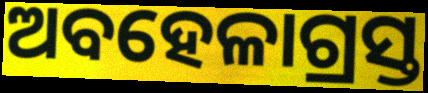
ଅବହେଳାଗ୍ରସ୍ତ